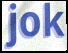
jok